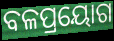
ବଳପ୍ରୟୋଗ